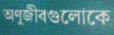
অণুজীবগুলোকে